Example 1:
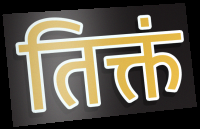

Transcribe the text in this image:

तिक्तं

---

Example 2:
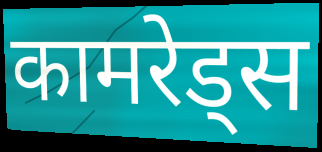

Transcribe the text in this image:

कामरेड्स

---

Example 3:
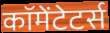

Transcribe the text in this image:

कॉमेंटेटर्स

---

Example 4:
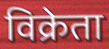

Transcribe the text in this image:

विक्रेता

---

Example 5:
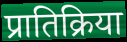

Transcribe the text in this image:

प्रातिक्रिया